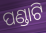
ପଣ୍ଡାଟି